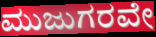
ಮುಜುಗರವೇ